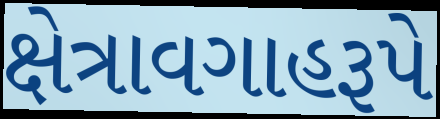
ક્ષેત્રાવગાહરૂપે